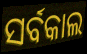
ସର୍ବକାଲ